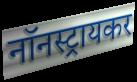
नॉनस्ट्रायकर